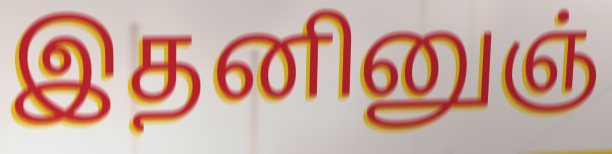
இதனினுஞ்